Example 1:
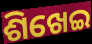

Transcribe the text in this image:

ଶିଖେଇ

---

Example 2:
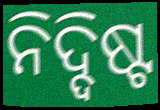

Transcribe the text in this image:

ନିଦ୍ଦିଷ୍ଟ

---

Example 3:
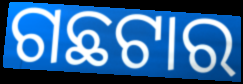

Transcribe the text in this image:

ଗଛଟାର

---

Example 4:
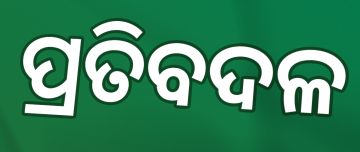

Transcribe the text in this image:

ପ୍ରତିବଦଳ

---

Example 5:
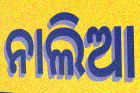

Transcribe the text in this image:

ନାଲିଆ